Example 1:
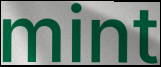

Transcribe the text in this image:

mint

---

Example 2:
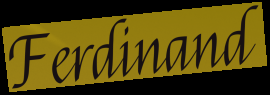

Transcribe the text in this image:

Ferdinand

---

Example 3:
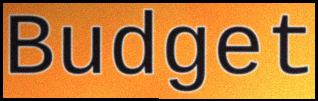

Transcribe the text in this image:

Budget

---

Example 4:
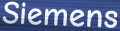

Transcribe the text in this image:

Siemens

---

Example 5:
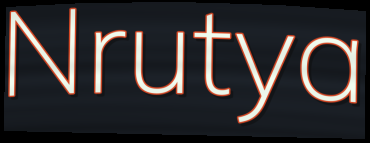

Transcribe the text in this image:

Nrutya